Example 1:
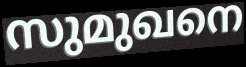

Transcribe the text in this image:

സുമുഖനെ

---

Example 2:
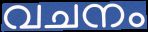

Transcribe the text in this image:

വചനം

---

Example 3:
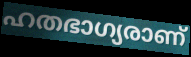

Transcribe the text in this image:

ഹതഭാഗ്യരാണ്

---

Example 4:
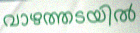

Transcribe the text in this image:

വാഴത്തടയിൽ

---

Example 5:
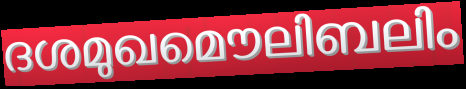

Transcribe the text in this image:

ദശമുഖമൌലിബലിം